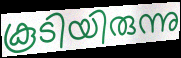
കൂടിയിരുന്നു